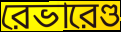
রেভারেণ্ড